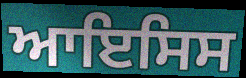
ਆਇਸਿਸ